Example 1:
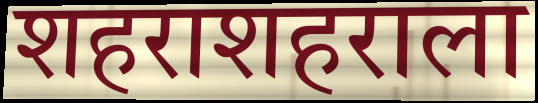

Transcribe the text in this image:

शहराशहराला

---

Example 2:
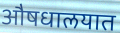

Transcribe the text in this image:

औषधालयात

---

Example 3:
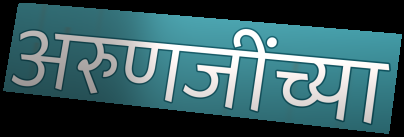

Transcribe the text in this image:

अरुणजींच्या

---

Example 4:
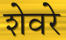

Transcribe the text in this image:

शेवरे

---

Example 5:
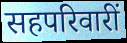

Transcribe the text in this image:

सहपरिवारीं